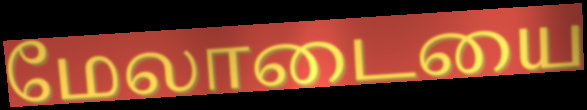
மேலாடையை